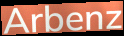
Arbenz